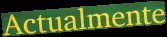
Actualmente